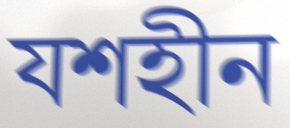
যশহীন